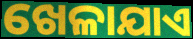
ଖେଳାଯାଏ